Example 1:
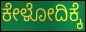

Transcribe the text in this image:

ಕೇಳೋದಿಕ್ಕೆ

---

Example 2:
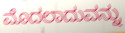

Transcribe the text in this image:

ಮೊದಲಾದುವನ್ನು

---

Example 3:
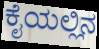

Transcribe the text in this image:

ಕೈಯಲ್ಲಿನ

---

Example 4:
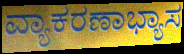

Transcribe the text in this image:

ವ್ಯಾಕರಣಾಭ್ಯಾಸ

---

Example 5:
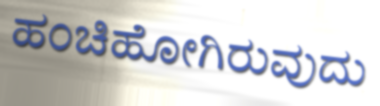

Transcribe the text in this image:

ಹಂಚಿಹೋಗಿರುವುದು